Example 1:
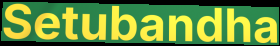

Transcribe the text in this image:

Setubandha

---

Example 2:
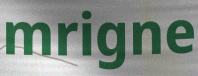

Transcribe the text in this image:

mrigne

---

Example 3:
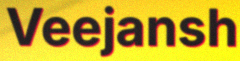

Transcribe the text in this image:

Veejansh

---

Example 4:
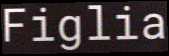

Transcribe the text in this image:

Figlia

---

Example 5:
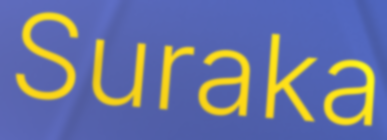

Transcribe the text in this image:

Suraka